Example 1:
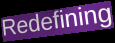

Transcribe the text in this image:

Redefining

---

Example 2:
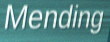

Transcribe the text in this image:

Mending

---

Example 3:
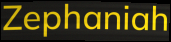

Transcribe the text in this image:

Zephaniah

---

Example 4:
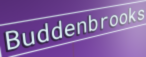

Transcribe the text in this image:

Buddenbrooks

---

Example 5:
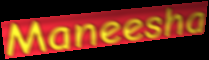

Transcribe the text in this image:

Maneesha